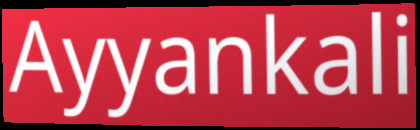
Ayyankali